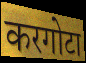
करगोटा